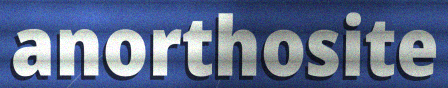
anorthosite